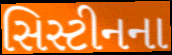
સિસ્ટીનના